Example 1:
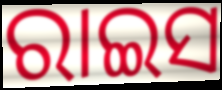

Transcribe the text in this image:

ରାଇସ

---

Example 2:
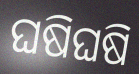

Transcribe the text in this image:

ଘଷିଘଷି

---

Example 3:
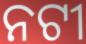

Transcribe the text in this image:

ନଟୀ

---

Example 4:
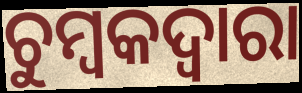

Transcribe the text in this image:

ଚୁମ୍ବକଦ୍ବାରା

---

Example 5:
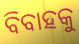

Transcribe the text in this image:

ବିବାହକୁ